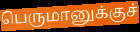
பெருமானுக்குச்